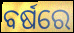
ବର୍ଷରେ